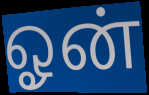
ஓன்